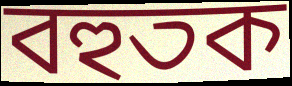
বহুতক